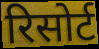
रिसोर्ट